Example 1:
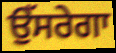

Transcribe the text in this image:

ਉੱਸਰੇਗਾ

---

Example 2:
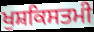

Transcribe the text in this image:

ਖੁਸ਼ਕਿਸਤਮੀ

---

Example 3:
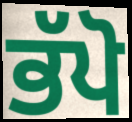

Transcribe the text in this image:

ਭੱਪੋ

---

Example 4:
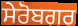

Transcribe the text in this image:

ਸੇਰੋਬਗਰ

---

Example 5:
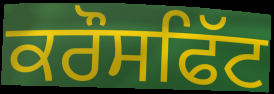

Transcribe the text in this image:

ਕਰੌਸਫਿੱਟ